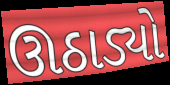
ઊઠાડ્યો